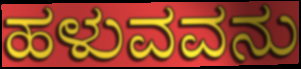
ಹಳುವವನು